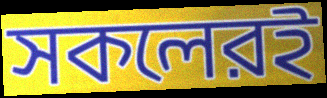
সকলেরই